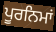
ਪੂਰਨਿਮਾਂ